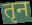
तृन